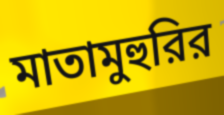
মাতামুহুরির